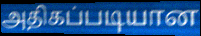
அதிகப்படியான